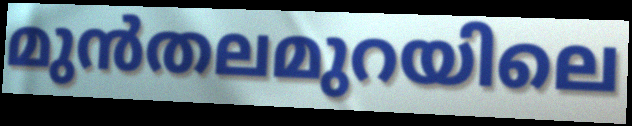
മുൻതലമുറയിലെ